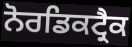
ਨੋਰਡਿਕਟ੍ਰੈਕ